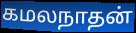
கமலநாதன்